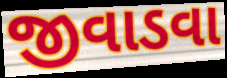
જીવાડવા